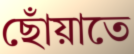
ছোঁয়াতে